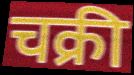
चक्री